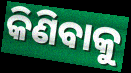
କିଣିବାକୁ